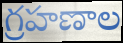
గ్రహణాల